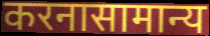
करनासामान्य